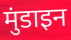
मुंडाइन